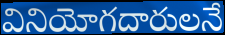
వినియోగదారులనే